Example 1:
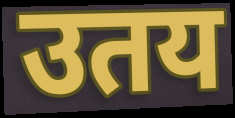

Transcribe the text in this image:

उतय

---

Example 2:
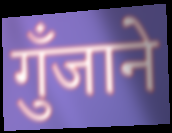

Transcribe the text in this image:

गुँजाने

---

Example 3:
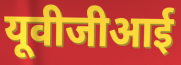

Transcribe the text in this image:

यूवीजीआई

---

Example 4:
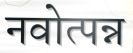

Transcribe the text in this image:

नवोत्पन्न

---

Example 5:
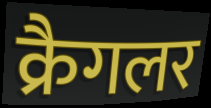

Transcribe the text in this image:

क्रैगलर